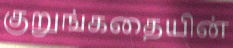
குறுங்கதையின்